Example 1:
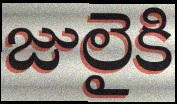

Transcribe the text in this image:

జులైకి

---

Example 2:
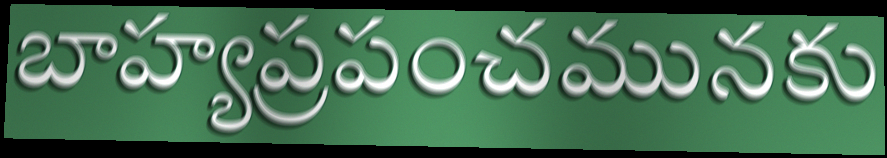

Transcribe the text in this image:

బాహ్యప్రపంచమునకు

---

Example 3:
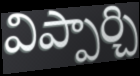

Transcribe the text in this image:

విప్పార్చి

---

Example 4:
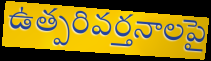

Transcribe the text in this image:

ఉత్పరివర్తనాలపై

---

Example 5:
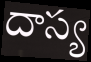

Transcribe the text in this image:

దాస్య